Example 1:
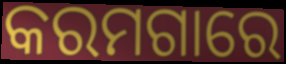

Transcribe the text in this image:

କରମଗାରେ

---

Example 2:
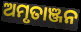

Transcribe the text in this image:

ଅମୃତାଞ୍ଜନ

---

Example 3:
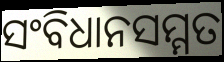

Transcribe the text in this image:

ସଂବିଧାନସମ୍ମତ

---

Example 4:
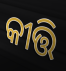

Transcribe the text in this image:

କୀତ୍ତି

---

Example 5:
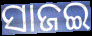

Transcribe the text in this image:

ସାଜଇ